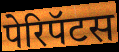
पेरिपॅटस